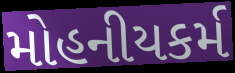
મોહનીયકર્મ